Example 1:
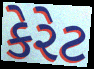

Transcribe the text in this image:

કેરેટ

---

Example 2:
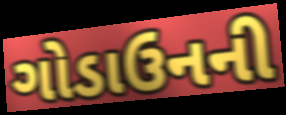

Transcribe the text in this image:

ગોડાઉનની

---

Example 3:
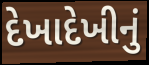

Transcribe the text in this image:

દેખાદેખીનું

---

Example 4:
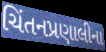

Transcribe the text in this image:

ચિંતનપ્રણાલીના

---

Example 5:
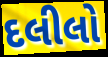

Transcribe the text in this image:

દલીલો